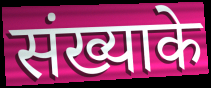
संख्याके